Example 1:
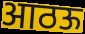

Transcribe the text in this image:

आठऊ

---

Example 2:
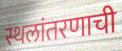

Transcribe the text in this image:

स्थलांतरणाची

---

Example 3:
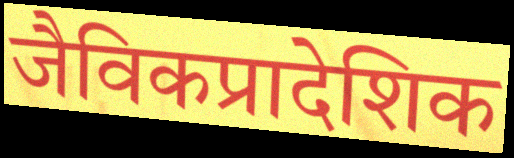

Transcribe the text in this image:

जैविकप्रादेशिक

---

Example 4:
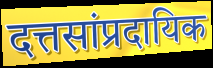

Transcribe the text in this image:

दत्तसांप्रदायिक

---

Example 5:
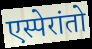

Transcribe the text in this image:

एस्पेरांतो